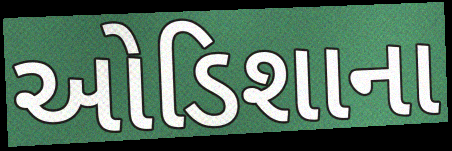
ઓડિશાના